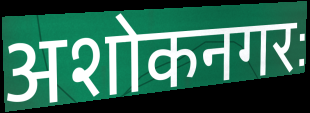
अशोकनगरः